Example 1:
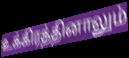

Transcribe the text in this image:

உக்கிரத்தினாலும்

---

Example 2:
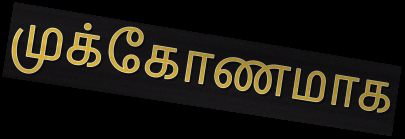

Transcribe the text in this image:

முக்கோணமாக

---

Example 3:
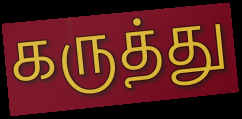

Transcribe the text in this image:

கருத்து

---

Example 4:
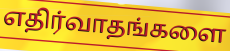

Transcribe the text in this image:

எதிர்வாதங்களை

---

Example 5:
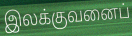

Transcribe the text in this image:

இலக்குவனைப்